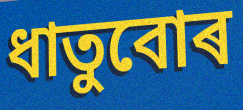
ধাতুবোৰ